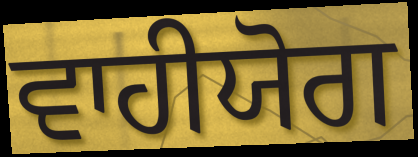
ਵਾਹੀਯੋਗ